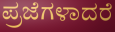
ಪ್ರಜೆಗಳಾದರೆ